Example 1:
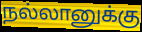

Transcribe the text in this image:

நல்லானுக்கு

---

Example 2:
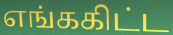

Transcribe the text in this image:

எங்ககிட்ட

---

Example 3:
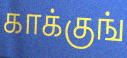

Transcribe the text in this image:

காக்குங்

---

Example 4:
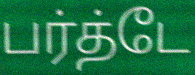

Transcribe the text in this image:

பர்த்டே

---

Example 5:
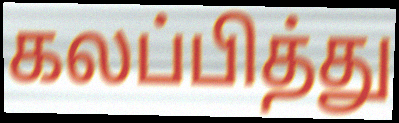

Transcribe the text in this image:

கலப்பித்து